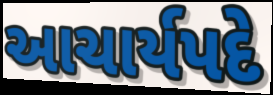
આચાર્યપદે